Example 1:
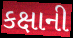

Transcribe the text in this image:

કક્ષાની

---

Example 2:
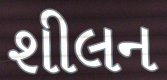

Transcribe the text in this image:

શીલન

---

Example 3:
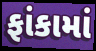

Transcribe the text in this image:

ફાંકામાં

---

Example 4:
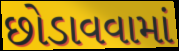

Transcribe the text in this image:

છોડાવવામાં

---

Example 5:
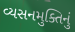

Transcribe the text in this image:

વ્યસનમુક્તિનું